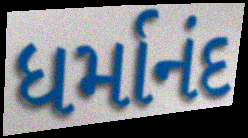
ધર્માનંદ